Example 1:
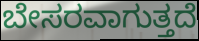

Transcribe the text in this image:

ಬೇಸರವಾಗುತ್ತದೆ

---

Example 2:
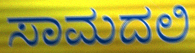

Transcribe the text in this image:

ಸಾಮದಲಿ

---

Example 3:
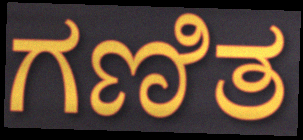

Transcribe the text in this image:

ಗಣಿತ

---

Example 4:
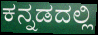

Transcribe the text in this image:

ಕನ್ನಡದಲ್ಲಿ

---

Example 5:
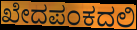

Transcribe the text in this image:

ಖೇದಪಂಕದಲಿ